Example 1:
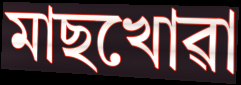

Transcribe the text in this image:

মাছখোৱা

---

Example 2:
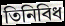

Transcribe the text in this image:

তিনিবিধ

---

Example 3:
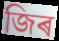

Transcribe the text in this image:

জিৰ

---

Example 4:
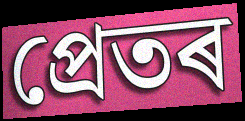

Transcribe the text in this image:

প্ৰেতৰ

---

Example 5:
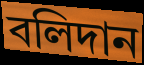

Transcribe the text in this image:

বলিদান